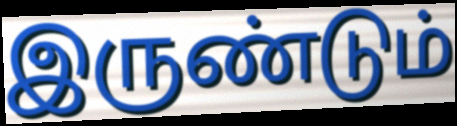
இருண்டும்